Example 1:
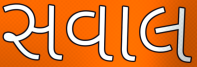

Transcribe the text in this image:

સવાલ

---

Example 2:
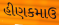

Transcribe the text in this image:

હીણકમાઉ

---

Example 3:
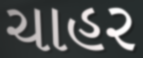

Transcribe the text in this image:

ચાહર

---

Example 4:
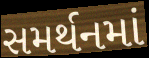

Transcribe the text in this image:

સમર્થનમાં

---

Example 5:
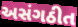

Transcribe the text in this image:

અસંગઠીત